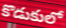
కొడుకులో